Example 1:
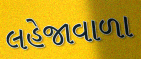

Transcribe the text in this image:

લહેજાવાળા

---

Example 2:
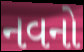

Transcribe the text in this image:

નવનો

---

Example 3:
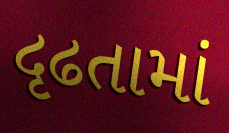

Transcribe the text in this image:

દૃઢતામાં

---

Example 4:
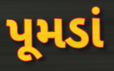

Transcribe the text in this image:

પૂમડાં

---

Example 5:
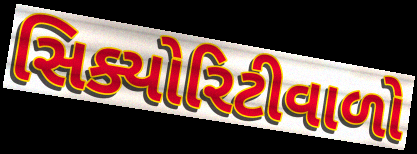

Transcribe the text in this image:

સિક્યોરિટીવાળો